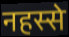
नहस्से